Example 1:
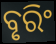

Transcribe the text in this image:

ବୃରିଂ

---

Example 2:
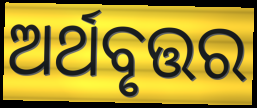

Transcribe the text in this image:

ଅର୍ଥବୃତ୍ତର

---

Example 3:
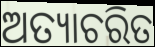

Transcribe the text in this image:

ଅତ୍ୟାଚରିତ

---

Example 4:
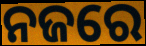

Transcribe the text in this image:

ନଜରେ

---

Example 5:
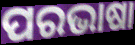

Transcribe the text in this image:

ପରଭାଷା